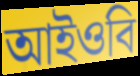
আইওবি